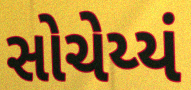
સોચેય્યં